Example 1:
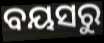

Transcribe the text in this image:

ବୟସରୁ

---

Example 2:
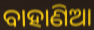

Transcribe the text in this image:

ବାହାଣିଆ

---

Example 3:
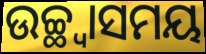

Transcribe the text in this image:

ଉଚ୍ଛ୍ୱାସମୟ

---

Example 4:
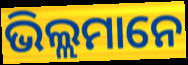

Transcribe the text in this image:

ଭିଲ୍ଲମାନେ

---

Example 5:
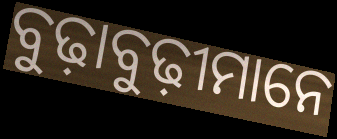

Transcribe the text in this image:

ବୁଢ଼ାବୁଢ଼ୀମାନେ